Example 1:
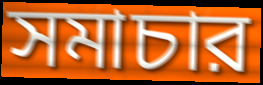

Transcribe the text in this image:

সমাচার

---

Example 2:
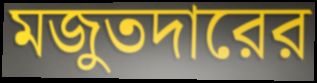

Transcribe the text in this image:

মজুতদারের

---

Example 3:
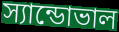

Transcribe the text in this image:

স্যান্ডোভাল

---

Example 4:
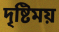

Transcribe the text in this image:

দৃষ্টিময়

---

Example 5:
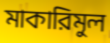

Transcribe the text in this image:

মাকারিমুল